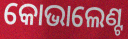
କୋଭାଲେଣ୍ଟ